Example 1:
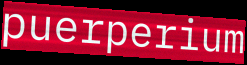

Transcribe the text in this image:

puerperium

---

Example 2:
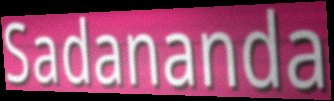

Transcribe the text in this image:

Sadananda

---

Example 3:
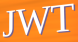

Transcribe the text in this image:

JWT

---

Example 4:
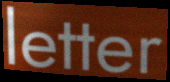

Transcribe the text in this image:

letter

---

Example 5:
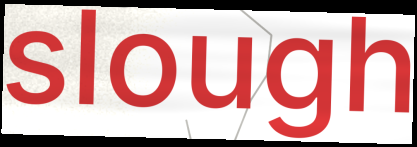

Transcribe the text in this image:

slough